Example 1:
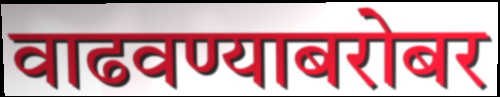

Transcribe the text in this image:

वाढवण्याबरोबर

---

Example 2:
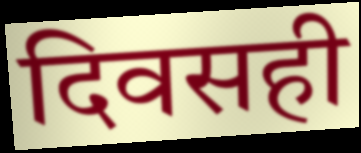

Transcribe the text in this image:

दिवसही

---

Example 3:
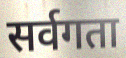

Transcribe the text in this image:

सर्वगता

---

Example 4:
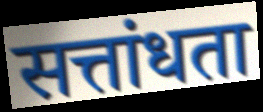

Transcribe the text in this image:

सत्तांधता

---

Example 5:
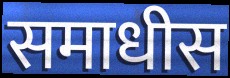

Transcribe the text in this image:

समाधीस